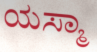
ಯಸ್ಮಾ